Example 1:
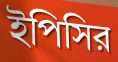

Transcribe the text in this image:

ইপিসির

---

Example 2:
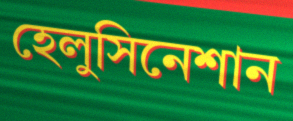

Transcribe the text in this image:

হেলুসিনেশান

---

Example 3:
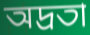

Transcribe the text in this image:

অদ্রতা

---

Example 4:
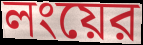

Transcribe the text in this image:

লংয়ের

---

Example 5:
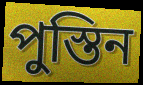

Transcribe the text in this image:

পুস্তিন